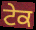
ਟੇਕ